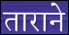
ताराने